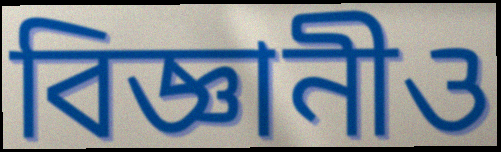
বিজ্ঞানীও